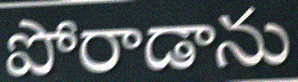
పోరాడాను